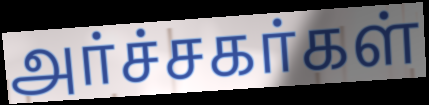
அர்ச்சகர்கள்